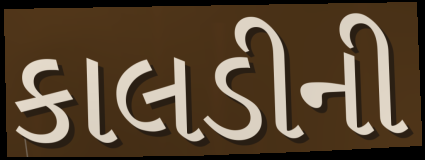
કાલડીની